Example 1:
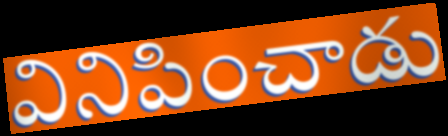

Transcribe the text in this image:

వినిపించాడు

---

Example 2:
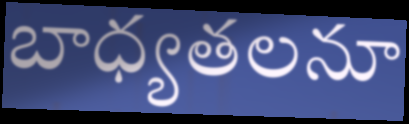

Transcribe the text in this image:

బాధ్యతలనూ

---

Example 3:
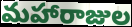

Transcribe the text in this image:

మహారాజుల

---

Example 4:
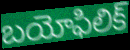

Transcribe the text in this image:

బయోఫిలిక్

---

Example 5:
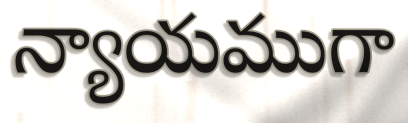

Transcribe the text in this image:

న్యాయముగా